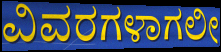
ವಿವರಗಳಾಗಲೀ